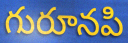
గురూనపి